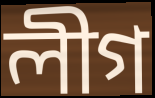
লীগ